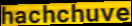
hachchuve